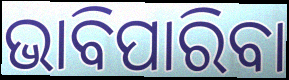
ଭାବିପାରିବା